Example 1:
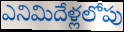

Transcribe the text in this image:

ఎనిమిదేళ్లలోపు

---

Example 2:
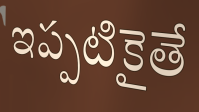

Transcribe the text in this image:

ఇప్పటికైతే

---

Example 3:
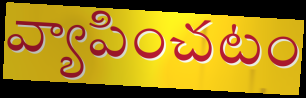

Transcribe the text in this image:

వ్యాపించటం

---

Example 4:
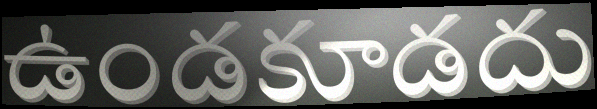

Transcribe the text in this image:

ఉండకూడదు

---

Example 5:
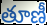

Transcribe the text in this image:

తూణీ